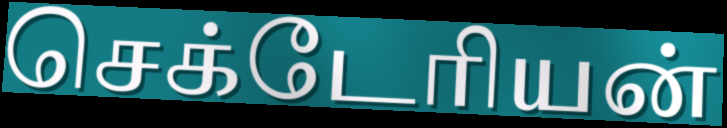
செக்டேரியன்